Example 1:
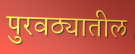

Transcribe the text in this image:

पुरवठ्यातील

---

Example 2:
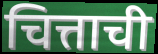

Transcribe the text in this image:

चित्ताची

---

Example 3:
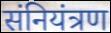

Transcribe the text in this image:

संनियंत्रण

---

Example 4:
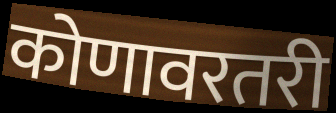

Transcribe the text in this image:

कोणावरतरी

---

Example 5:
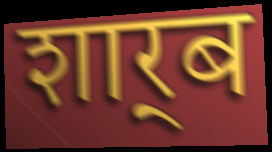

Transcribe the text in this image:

शार्ब